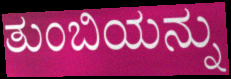
ತುಂಬಿಯನ್ನು